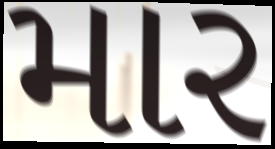
માર